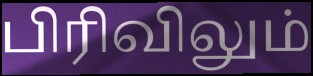
பிரிவிலும்